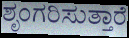
ಶೃಂಗರಿಸುತ್ತಾರೆ